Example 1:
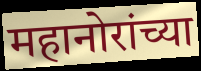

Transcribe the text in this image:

महानोरांच्या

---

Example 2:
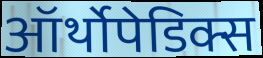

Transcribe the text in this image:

ऑर्थोपेडिक्स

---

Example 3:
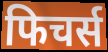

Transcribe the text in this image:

फिचर्स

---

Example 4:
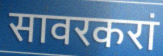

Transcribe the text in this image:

सावरकरां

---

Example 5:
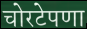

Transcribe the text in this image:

चोरटेपणा